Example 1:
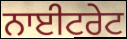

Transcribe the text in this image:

ਨਾਈਟਰੇਟ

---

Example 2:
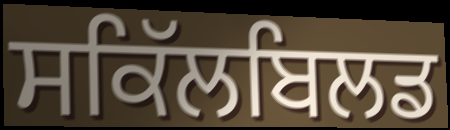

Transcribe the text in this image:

ਸਕਿੱਲਬਿਲਡ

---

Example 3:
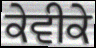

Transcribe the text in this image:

ਕੇਵੀਕੇ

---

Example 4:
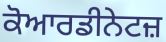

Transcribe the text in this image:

ਕੋਆਰਡੀਨੇਟਜ਼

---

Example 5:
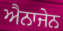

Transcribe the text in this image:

ਐਨਾਜੇਨ